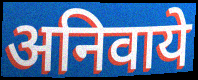
अनिवाये